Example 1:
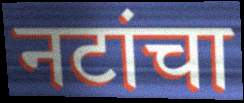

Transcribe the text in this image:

नटांचा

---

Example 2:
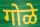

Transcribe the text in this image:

गोळे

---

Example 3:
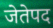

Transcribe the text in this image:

जेतेपद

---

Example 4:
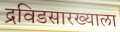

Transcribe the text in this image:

द्रविडसारख्याला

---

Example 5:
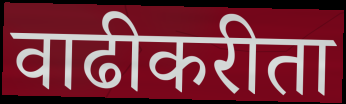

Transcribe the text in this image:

वाढीकरीता